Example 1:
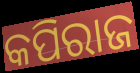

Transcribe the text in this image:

କପିରାଜ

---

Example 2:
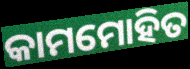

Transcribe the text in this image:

କାମମୋହିତ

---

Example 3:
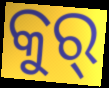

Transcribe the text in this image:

କୁର୍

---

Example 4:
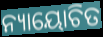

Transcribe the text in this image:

ନ୍ୟାୟୋଚିତ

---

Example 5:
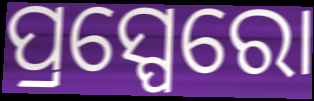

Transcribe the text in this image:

ପ୍ରସ୍ପେରୋ